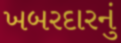
ખબરદારનું